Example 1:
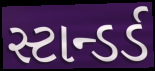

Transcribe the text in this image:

સ્ટાન્ડર્ડ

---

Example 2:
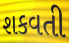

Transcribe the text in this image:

શકવતી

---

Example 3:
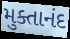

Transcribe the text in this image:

મુક્તાનંદ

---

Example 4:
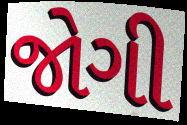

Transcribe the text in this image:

જોગી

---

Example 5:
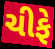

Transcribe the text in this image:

ચીફે